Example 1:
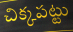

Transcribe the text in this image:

చిక్కపట్టు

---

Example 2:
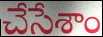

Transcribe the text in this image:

చేసేశాం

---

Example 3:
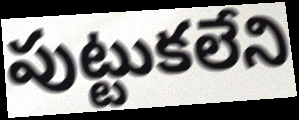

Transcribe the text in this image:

పుట్టుకలేని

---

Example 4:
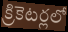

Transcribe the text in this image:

క్రికెటర్లలో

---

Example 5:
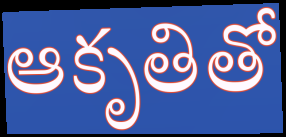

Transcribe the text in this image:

ఆకృతితో